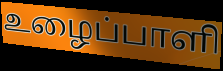
உழைப்பாளி